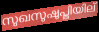
സുഖസുഷുപ്തിയില്